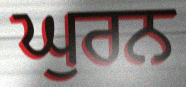
ਘੁਰਨ